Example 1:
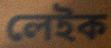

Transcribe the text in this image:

লেইক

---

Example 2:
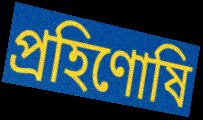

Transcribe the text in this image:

প্রহিণোষি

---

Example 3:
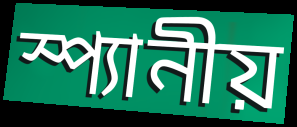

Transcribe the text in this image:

স্প্যানীয়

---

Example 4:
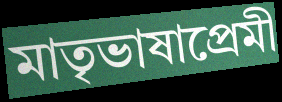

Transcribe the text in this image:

মাতৃভাষাপ্রেমী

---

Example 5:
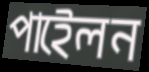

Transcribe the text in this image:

পাইেলন